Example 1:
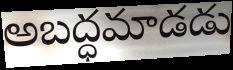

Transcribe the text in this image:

అబద్ధమాడడు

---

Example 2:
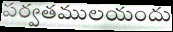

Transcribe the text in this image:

పర్వతములయందు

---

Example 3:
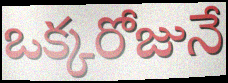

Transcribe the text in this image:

ఒక్కరోజునే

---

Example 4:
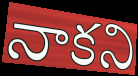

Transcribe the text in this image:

నాకని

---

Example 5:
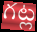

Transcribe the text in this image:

గట్ల